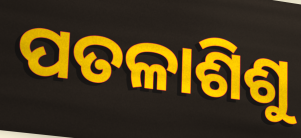
ପତଳାଶିଶୁ